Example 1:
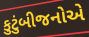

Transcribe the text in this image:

કુટુંબીજનોએ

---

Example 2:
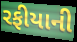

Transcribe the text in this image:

રફીયાની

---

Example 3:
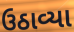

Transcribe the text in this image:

ઉઠાવ્યા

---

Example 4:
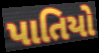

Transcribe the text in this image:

પાતિયો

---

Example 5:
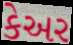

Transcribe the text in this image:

કેઅર